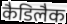
कैडिलैक